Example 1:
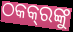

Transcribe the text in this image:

ଠକକ୍‌ରଙ୍କୁ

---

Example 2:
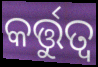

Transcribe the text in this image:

କର୍ତ୍ତୁତ୍ୱ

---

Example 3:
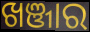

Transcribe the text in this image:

ଖଞ୍ଜାର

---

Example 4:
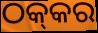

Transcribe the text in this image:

ଠକ୍‍କର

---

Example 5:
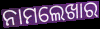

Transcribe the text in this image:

ନାମଲେଖାର